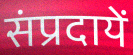
संप्रदायें